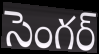
సెంగర్